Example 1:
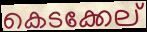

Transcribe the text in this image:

കെടക്കേല്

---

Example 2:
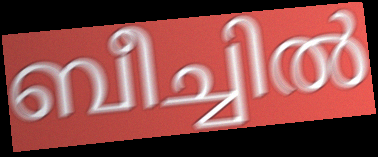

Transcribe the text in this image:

ബീച്ചിൽ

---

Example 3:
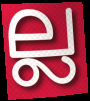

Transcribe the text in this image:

ല്ല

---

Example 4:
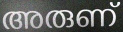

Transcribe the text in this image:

അരുണ്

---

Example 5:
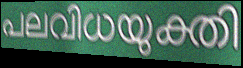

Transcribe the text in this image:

പലവിധയുക്തി